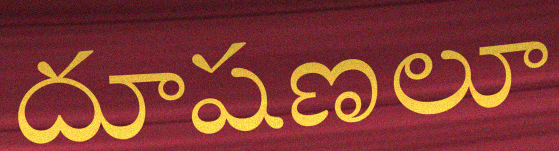
దూషణలూ